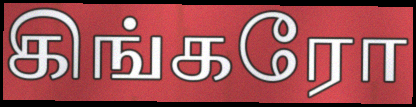
கிங்கரோ